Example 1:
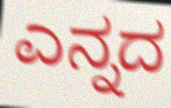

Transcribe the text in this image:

ಎನ್ನದ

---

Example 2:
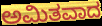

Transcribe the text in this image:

ಅಮಿತವಾದ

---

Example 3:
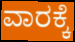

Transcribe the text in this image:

ವಾರಕ್ಕೆ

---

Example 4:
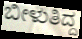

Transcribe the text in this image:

ಬೀಳುತಿದ್ದ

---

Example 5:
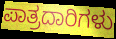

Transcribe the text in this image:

ಪಾತ್ರದಾರಿಗಳು